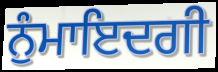
ਨੁੰਮਾਇਦਗੀ